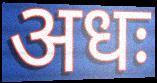
अधः